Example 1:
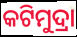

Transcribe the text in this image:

କଟିମୁଦ୍ରା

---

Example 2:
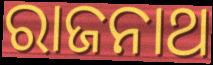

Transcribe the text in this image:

ରାଜନାଥ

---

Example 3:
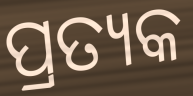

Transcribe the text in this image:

ପ୍ରତ୍ୟକ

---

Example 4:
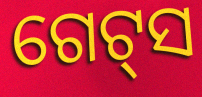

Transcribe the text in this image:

ଗେଟ୍‌ସ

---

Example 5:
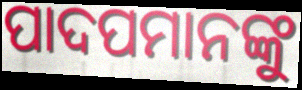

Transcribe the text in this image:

ପାଦପମାନଙ୍କୁ